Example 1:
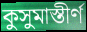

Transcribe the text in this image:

কুসুমাস্তীর্ণ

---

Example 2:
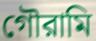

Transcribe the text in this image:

গৌরামি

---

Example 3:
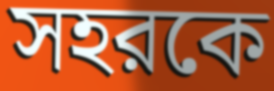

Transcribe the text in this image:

সহরকে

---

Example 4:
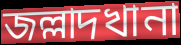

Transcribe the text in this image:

জল্লাদখানা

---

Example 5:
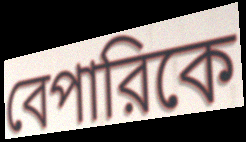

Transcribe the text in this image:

বেপারিকে